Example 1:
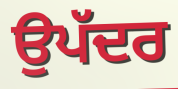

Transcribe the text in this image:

ਉਪੱਦਰ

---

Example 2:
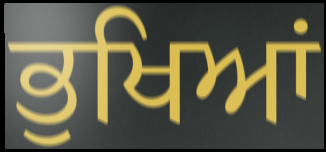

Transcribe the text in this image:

ਭੁਖਿਆਂ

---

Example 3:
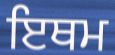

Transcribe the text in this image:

ਇਥਮ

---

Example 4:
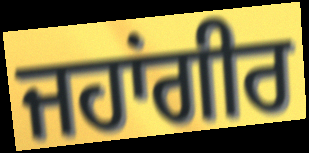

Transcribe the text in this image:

ਜਹਾਂਗੀਰ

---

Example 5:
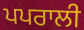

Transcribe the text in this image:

ਪਪਰਾਲੀ